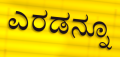
ಎರಡನ್ನೂ